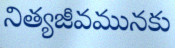
నిత్యజీవమునకు